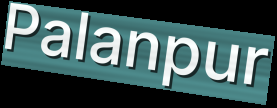
Palanpur